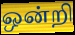
ஒன்றி